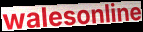
walesonline